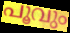
പൂവും